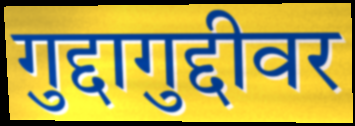
गुद्दागुद्दीवर